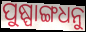
ପୁଷ୍ପାଙ୍ଗଧନୁ